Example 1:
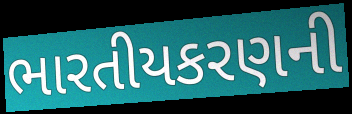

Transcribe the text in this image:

ભારતીયકરણની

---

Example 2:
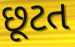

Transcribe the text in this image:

છૂટત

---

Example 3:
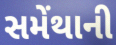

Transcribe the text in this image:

સમેંથાની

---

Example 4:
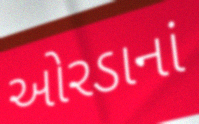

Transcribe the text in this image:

ઓરડાનાં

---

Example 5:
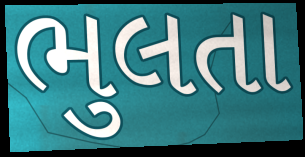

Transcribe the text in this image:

ભુલતા